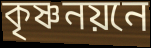
কৃষ্ণনয়নে